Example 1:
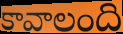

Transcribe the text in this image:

కావాలంది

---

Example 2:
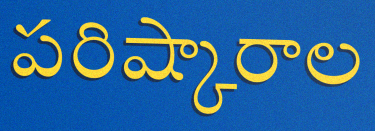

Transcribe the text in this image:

పరిష్కారాల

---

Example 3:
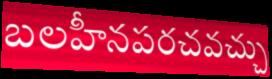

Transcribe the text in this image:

బలహీనపరచవచ్చు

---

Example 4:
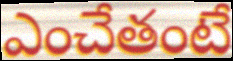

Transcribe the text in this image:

ఎంచేతంటే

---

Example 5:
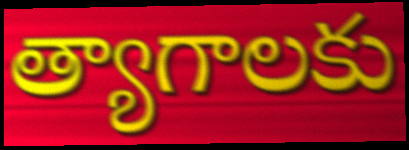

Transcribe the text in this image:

త్యాగాలకు